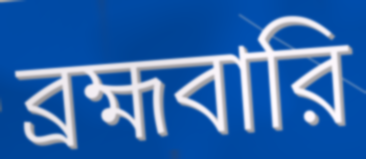
ব্রহ্মবারি